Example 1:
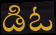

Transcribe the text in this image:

డిఓ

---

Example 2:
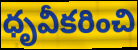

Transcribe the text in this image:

ధృవీకరించి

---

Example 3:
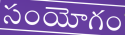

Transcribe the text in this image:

సంయోగం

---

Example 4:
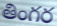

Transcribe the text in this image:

తింగర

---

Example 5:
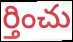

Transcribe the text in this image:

ర్తించు